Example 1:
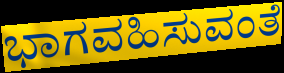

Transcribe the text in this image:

ಭಾಗವಹಿಸುವಂತೆ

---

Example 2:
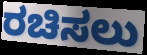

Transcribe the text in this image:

ರಚಿಸಲು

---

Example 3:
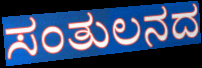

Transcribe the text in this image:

ಸಂತುಲನದ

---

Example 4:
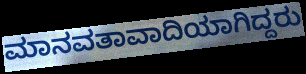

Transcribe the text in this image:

ಮಾನವತಾವಾದಿಯಾಗಿದ್ದರು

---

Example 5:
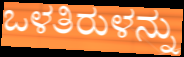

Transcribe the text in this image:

ಒಳತಿರುಳನ್ನು